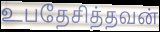
உபதேசித்தவன்